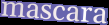
mascara